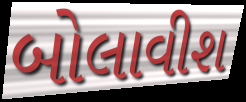
બોલાવીશ